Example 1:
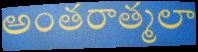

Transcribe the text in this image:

అంతరాత్మలా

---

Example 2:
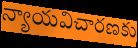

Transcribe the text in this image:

న్యాయవిచారణకు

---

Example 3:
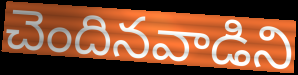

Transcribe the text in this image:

చెందినవాడిని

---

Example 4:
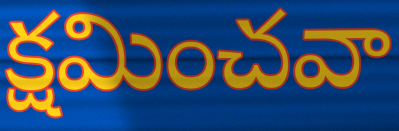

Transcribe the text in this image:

క్షమించవా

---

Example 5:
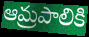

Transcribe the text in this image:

ఆమ్రపాలికి